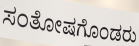
ಸಂತೋಷಗೊಂಡರು